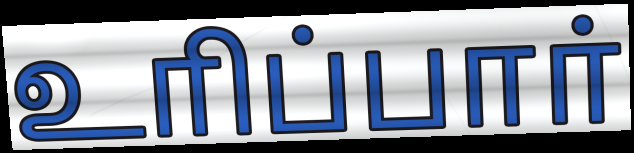
உரிப்பார்